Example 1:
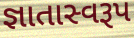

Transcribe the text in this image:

જ્ઞાતાસ્વરૂપ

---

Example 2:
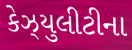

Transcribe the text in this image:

કેઝ્યુલીટીના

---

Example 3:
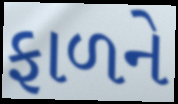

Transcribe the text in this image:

ફાળને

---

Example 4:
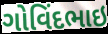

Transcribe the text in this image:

ગોવિંદભાઇ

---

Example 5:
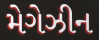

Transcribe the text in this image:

મેગેઝીન